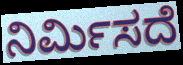
ನಿರ್ಮಿಸದೆ